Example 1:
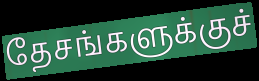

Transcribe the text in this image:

தேசங்களுக்குச்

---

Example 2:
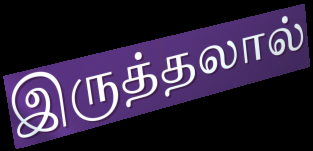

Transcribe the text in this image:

இருத்தலால்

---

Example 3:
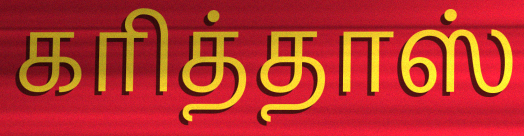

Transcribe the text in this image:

கரித்தாஸ்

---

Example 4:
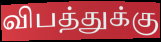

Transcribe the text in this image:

விபத்துக்கு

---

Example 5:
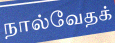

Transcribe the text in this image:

நால்வேதக்